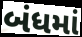
બંધમાં